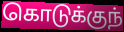
கொடுக்குந்